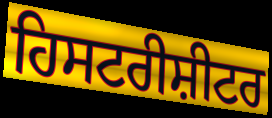
ਹਿਸਟਰੀਸ਼ੀਟਰ